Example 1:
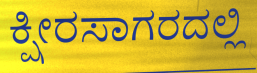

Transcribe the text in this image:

ಕ್ಷೀರಸಾಗರದಲ್ಲಿ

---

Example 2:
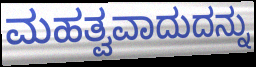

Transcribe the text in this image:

ಮಹತ್ವವಾದುದನ್ನು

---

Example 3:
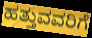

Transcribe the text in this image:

ಹತ್ತುವವರಿಗೆ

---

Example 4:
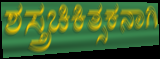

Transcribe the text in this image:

ಶಸ್ತ್ರಚಿಕಿತ್ಸಕನಾಗಿ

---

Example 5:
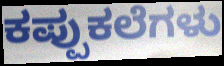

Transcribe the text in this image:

ಕಪ್ಪುಕಲೆಗಳು